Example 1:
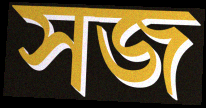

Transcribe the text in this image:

সজ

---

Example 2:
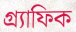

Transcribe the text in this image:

গ্র্যাফিক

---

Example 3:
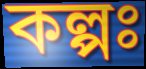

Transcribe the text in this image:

কল্পঃ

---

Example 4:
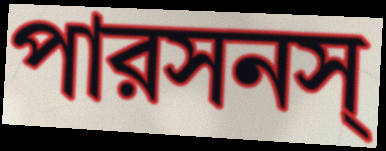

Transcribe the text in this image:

পারসনস্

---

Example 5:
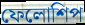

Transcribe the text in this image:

ফেলোশিপ